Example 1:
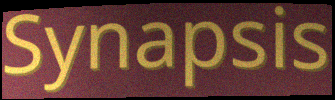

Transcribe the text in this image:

Synapsis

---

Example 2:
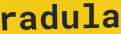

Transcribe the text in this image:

radula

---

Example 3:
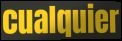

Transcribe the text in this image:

cualquier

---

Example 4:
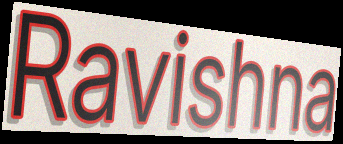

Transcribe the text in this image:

Ravishna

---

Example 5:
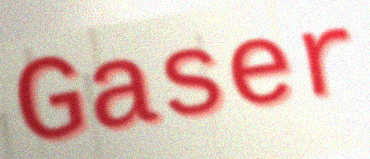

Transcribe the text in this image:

Gaser